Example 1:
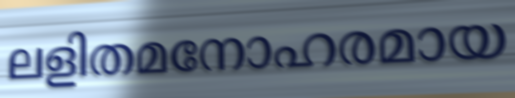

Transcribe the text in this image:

ലളിതമനോഹരമായ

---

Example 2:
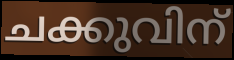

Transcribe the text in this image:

ചക്കുവിന്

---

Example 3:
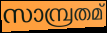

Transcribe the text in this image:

സാമ്പ്രതമ്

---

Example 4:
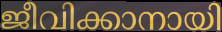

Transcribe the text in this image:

ജീവിക്കാനായി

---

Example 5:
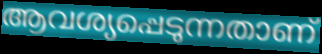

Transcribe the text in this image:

ആവശ്യപ്പെടുന്നതാണ്